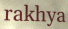
rakhya